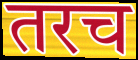
तरच